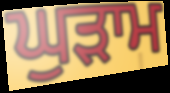
ਘੁੜਾਮ